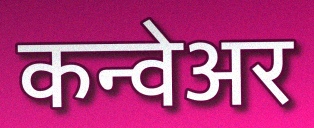
कन्वेअर